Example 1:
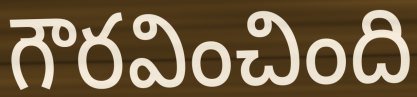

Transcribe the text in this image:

గౌరవించింది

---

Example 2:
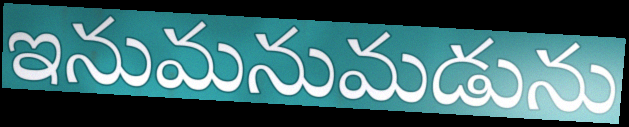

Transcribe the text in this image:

ఇనుమనుమడును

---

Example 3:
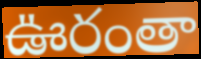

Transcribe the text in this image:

ఊరంతా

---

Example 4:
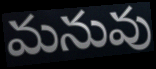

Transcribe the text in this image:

మనువు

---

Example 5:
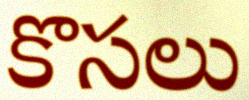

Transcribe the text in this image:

కొసలు